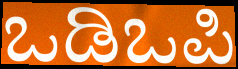
ಒಡಿಒಪಿ